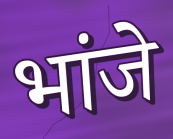
भांजे